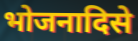
भोजनादिसे